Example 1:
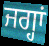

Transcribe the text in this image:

ਜਗ੍ਹਾਂ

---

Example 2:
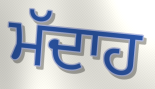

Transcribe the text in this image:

ਮੱਦਾਹ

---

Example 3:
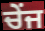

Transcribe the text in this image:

ਚੇਂਜ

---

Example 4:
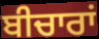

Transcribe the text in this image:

ਬੀਚਾਰਾਂ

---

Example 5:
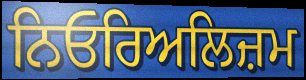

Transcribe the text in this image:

ਨਿਓਰਿਅਲਿਜ਼ਮ